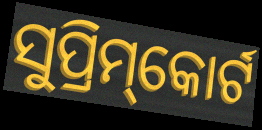
ସୁପ୍ରିମ୍‌କୋର୍ଟ